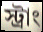
স্ট্রাং